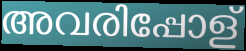
അവരിപ്പോള്